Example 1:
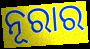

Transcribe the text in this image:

ନୂରାର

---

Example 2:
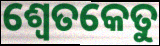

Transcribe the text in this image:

ଶ୍ୱେତକେତୁ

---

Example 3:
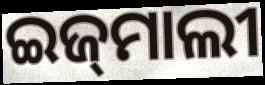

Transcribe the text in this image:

ଇଜ୍‌ମାଲୀ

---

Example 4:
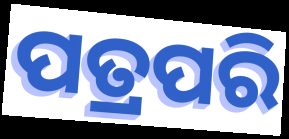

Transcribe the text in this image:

ପତ୍ରପରି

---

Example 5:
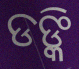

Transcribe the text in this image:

ଡଙ୍କି